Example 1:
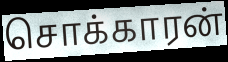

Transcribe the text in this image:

சொக்காரன்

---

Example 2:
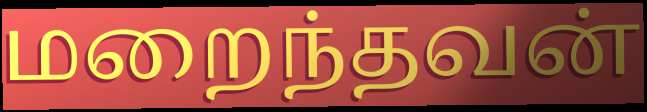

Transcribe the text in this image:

மறைந்தவன்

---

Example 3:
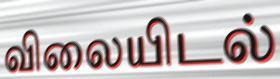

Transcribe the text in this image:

விலையிடல்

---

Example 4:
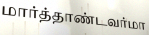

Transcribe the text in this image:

மார்த்தாண்டவர்மா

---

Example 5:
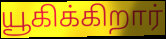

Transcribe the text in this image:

யூகிக்கிறார்